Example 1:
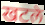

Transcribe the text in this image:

खटले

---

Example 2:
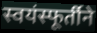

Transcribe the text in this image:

स्वयंस्फूर्तीने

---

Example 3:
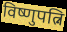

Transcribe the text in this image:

विष्णुपत्नि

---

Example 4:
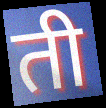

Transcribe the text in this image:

ती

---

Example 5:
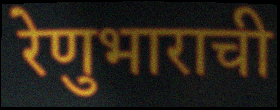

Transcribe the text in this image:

रेणुभाराची